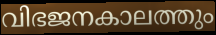
വിഭജനകാലത്തും